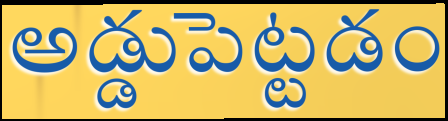
అడ్డుపెట్టడం